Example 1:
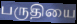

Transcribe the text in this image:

பருதியை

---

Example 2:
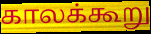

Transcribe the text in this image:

காலக்கூறு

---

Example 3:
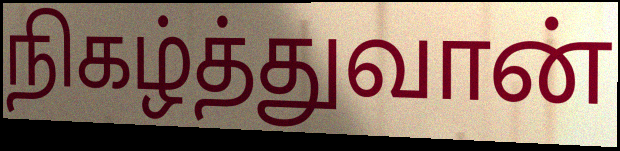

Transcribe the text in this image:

நிகழ்த்துவான்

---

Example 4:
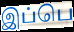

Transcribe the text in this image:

இப்பெ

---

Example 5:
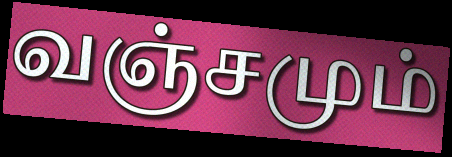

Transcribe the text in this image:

வஞ்சமும்